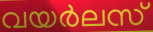
വയർലസ്